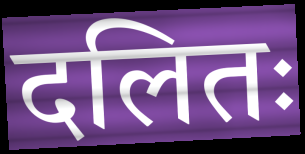
दलितः